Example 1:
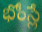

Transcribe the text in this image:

భోంస్లే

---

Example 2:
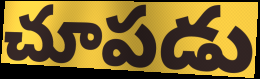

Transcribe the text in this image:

చూపడు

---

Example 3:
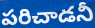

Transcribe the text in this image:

పరిచాడనీ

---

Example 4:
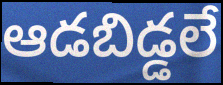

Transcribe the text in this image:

ఆడబిడ్డలే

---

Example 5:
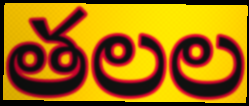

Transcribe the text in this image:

తలల